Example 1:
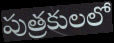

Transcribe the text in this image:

పుత్రకులలో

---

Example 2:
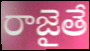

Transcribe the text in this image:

రాజైతే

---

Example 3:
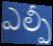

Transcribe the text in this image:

ఎల్పీ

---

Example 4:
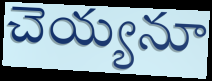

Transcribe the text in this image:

చెయ్యనూ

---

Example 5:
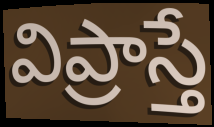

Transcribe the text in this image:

విప్రాస్తే